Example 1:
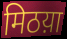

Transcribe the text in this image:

मिठय़ा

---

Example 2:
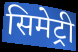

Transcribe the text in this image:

सिमेट्री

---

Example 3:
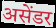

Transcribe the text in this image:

असेंडर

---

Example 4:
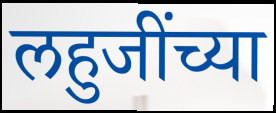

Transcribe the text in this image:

लहुजींच्या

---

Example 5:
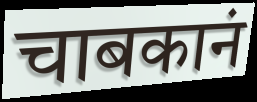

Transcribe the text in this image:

चाबकानं